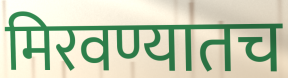
मिरवण्यातच